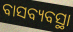
ବାସବ୍ୟବସ୍ଥା